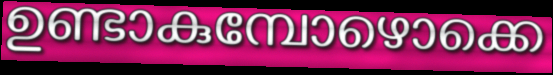
ഉണ്ടാകുമ്പോഴൊക്കെ